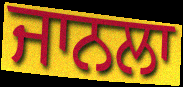
ਜਾਨਲਾ